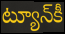
ట్యూన్‌కీ